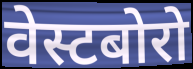
वेस्टबोरो